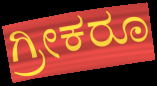
ಗ್ರೀಕರೂ